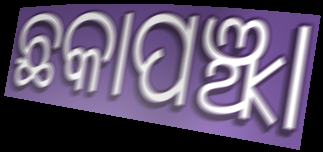
ଛକାପଞ୍ଝା